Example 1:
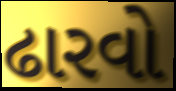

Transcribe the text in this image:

ઢારવો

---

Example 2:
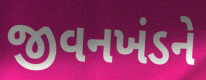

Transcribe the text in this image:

જીવનખંડને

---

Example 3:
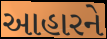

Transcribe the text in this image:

આહારને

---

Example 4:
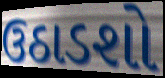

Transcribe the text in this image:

ઉઠાડશો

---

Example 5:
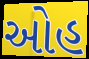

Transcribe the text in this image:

ઓહ